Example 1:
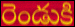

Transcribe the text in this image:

రెండుకి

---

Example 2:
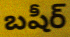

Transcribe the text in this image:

బషీర్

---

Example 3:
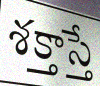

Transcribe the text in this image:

శక్తాస్తే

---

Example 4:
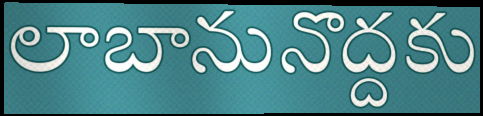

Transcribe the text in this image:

లాబానునొద్దకు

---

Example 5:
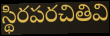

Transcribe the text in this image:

స్థిరపరచితివి